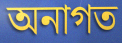
অনাগত